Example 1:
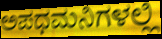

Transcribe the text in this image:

ಅಪಧಮನಿಗಳಲ್ಲಿ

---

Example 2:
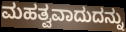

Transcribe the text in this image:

ಮಹತ್ವವಾದುದನ್ನು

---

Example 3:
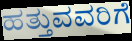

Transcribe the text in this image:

ಹತ್ತುವವರಿಗೆ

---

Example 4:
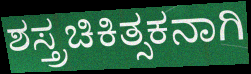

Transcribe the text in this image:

ಶಸ್ತ್ರಚಿಕಿತ್ಸಕನಾಗಿ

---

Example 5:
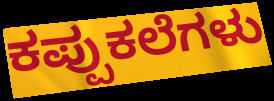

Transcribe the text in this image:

ಕಪ್ಪುಕಲೆಗಳು